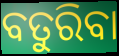
ବତୁରିବା